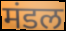
मंडल